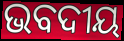
ଭବଦୀୟ